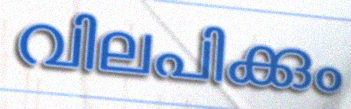
വിലപിക്കും